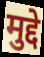
मुद्दे